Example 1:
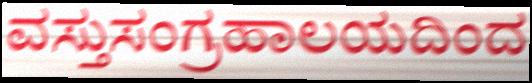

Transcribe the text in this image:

ವಸ್ತುಸಂಗ್ರಹಾಲಯದಿಂದ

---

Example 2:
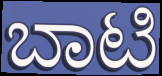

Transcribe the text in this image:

ಬಾಟಿ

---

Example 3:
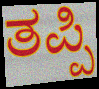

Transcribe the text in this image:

ತಪ್ಪಿ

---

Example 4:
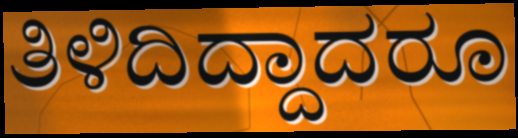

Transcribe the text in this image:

ತಿಳಿದಿದ್ದಾದರೂ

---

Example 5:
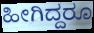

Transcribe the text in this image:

ಹೀಗಿದ್ದರೂ